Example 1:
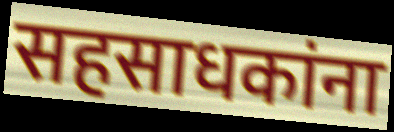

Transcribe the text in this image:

सहसाधकांना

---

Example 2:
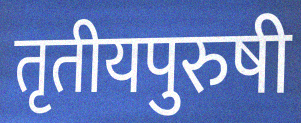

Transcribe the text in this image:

तृतीयपुरुषी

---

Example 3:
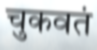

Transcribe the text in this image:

चुकवतं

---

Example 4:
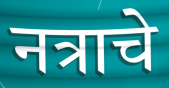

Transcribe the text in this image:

नत्राचे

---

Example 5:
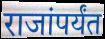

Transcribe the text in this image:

राजांपर्यंत